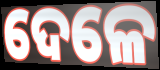
ଦେଳେ